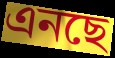
এনছে